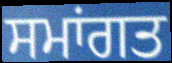
ਸਮਾਂਗਤ